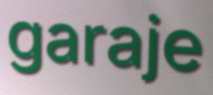
garaje